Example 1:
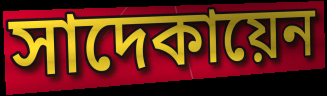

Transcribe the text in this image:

সাদেকায়েন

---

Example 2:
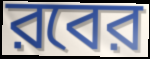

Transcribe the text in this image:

রবের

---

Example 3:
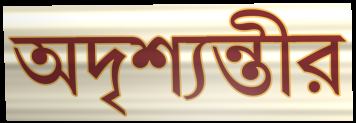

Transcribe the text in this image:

অদৃশ্যন্তীর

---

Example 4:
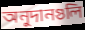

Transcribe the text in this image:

অনুদানগুলি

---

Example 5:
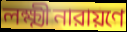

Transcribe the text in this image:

লক্ষ্মীনারায়ণে